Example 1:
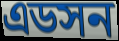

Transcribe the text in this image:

এডসন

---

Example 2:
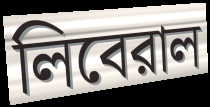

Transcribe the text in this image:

লিবেরাল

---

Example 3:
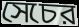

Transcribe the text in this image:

সেচের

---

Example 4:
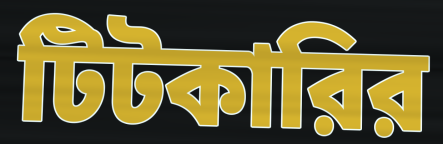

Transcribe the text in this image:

টিটকারির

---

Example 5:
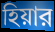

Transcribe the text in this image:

হিয়ার